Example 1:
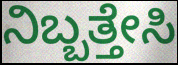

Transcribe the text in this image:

ನಿಬ್ಬತ್ತೇಸಿ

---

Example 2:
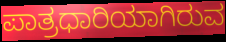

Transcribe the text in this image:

ಪಾತ್ರಧಾರಿಯಾಗಿರುವ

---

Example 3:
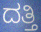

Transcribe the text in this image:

ದತ್ತಿ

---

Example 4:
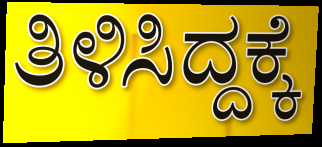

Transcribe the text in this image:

ತಿಳಿಸಿದ್ದಕ್ಕೆ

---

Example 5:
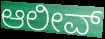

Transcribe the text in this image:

ಆಲೀವ್